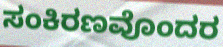
ಸಂಕಿರಣವೊಂದರ